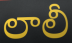
లాలీ